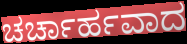
ಚರ್ಚಾರ್ಹವಾದ